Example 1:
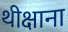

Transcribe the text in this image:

थीक्षाना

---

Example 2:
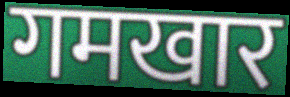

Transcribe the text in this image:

गमखार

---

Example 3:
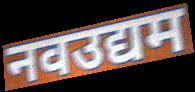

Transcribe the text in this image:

नवउद्यम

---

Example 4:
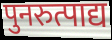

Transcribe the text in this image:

पुनरुत्पाद्य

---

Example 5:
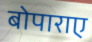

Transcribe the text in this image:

बोपाराए